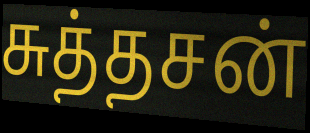
சுத்தசன்